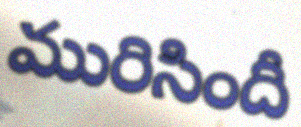
మురిసిందీ